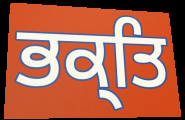
ਭਕ੍ਤਿ